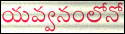
యవ్వనంలోనో